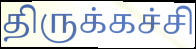
திருக்கச்சி